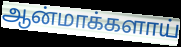
ஆன்மாக்களாய்